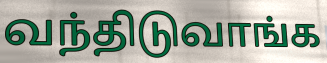
வந்திடுவாங்க